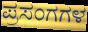
ಪ್ರಸಂಗಗಳ